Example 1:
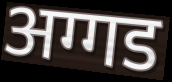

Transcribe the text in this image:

अग्गड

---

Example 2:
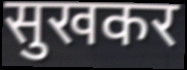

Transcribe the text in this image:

सुखकर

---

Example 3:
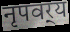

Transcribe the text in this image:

नृपवर्य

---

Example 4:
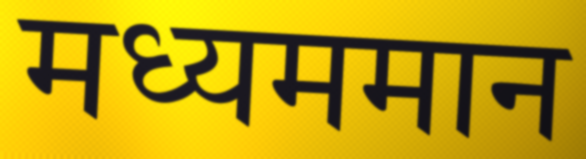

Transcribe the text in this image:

मध्यममान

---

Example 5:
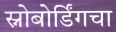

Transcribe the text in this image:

स्नोबोर्डिंगचा